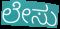
ಲೇಸು